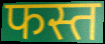
फस्त